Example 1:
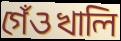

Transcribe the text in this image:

গেঁওখালি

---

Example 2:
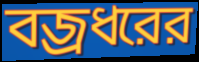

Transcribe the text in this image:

বজ্রধরের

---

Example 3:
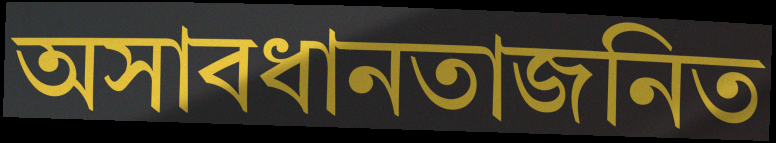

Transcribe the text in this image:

অসাবধানতাজনিত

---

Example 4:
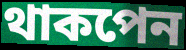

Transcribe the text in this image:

থাকপেন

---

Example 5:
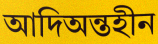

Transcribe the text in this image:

আদিঅন্তহীন